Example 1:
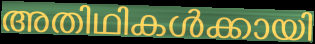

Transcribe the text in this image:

അതിഥികൾക്കായി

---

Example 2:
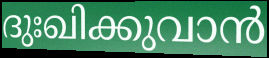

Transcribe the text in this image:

ദുഃഖിക്കുവാൻ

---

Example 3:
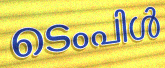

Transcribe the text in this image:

ടെംപിൾ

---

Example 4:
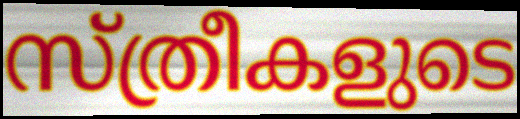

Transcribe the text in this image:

സ്ത്രീകളുടെ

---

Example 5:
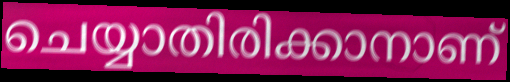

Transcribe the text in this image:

ചെയ്യാതിരിക്കാനാണ്